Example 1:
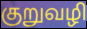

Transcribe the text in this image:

குறுவழி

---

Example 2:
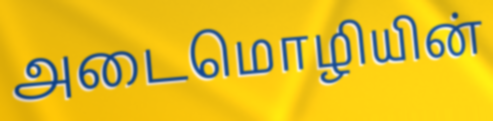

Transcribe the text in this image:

அடைமொழியின்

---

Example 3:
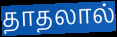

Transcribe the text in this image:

தாதலால்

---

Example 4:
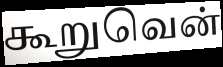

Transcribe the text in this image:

கூறுவென்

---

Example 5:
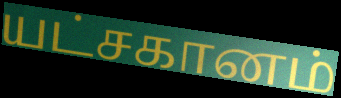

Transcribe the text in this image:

யட்சகானம்